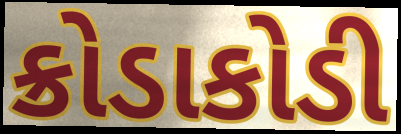
ક્રોડાકોડી